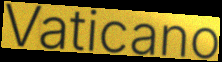
Vaticano